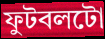
ফুটবলটো